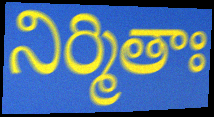
నిర్మితాః